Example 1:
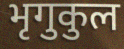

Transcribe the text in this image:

भृगुकुल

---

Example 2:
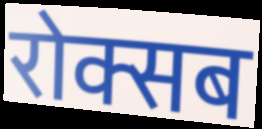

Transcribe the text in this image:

रोक्सब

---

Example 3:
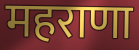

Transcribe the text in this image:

महराणा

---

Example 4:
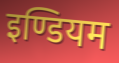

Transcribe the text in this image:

इण्डियम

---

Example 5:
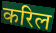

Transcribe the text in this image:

करिल